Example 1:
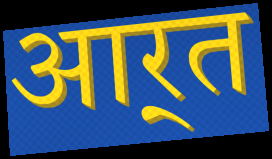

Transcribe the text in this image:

आर्त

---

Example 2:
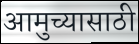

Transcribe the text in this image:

आमुच्यासाठी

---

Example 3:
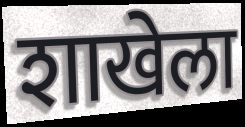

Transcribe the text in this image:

शाखेला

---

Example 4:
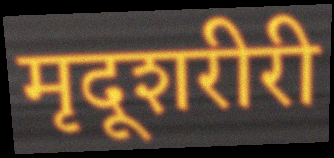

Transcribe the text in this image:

मृदूशरीरी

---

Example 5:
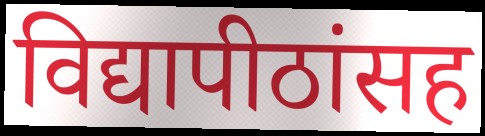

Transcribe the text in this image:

विद्यापीठांसह